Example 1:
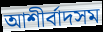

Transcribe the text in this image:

আশীর্বাদসম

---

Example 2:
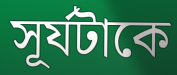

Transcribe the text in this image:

সূর্যটাকে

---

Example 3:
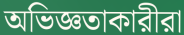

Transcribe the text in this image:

অভিজ্ঞতাকারীরা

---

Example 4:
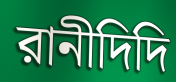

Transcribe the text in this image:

রানীদিদি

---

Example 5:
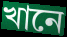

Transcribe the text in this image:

খানে